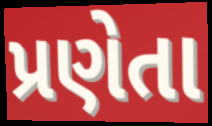
પ્રણેતા